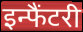
इन्फैंटरी